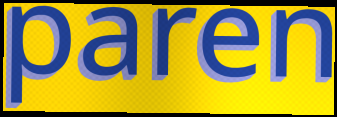
paren